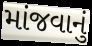
માંજવાનું